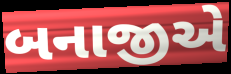
બનાજીએ